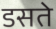
डसते